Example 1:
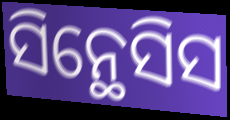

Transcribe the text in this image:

ସିନ୍ଥେସିସ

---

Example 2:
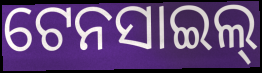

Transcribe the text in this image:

ଟେନସାଇଲ୍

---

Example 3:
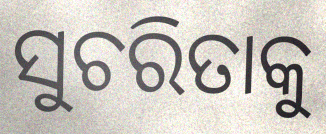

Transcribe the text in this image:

ସୁଚରିତାକୁ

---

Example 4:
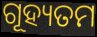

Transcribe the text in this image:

ଗୂହ୍ୟତମ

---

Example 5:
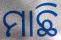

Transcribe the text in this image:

ମାଛି